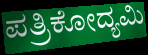
ಪತ್ರಿಕೋದ್ಯಮಿ